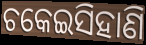
ଚକେଇସିହାଣି